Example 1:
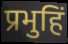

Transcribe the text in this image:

प्रभुहिं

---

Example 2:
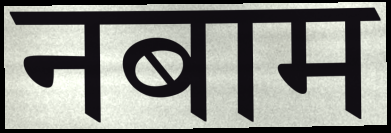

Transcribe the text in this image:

नबाम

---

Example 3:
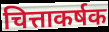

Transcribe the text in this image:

चित्ताकर्षक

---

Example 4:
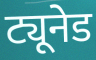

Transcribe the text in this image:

ट्यूनेड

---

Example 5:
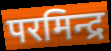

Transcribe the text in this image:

परमिन्द्र